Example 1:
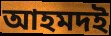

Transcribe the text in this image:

আহমদই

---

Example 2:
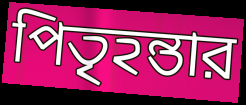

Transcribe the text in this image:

পিতৃহন্তার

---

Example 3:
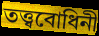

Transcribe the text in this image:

তত্ত্ববোধিনী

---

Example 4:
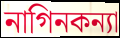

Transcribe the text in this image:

নাগিনকন্যা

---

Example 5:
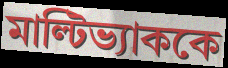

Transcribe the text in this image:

মাল্টিভ্যাককে